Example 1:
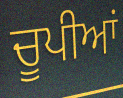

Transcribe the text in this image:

ਚੂਪੀਆਂ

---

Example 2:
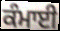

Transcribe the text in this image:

ਕੰਮਾਈ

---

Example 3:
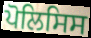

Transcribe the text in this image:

ਪੋਲਿਸਿਸ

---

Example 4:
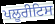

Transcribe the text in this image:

ਪਲੂਰੀਟਿਸ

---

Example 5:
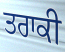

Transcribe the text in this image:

ਤਰਾਕੀ